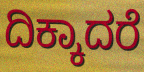
ದಿಕ್ಕಾದರೆ